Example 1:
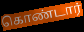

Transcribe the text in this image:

கொண்டார்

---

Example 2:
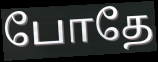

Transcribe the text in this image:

போதே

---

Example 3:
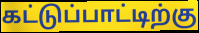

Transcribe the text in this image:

கட்டுப்பாட்டிற்கு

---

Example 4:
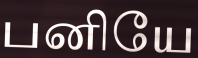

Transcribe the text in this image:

பனியே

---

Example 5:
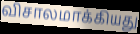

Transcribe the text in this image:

விசாலமாக்கியது